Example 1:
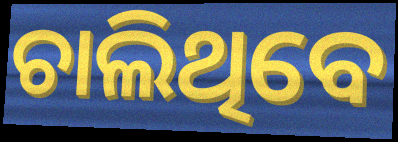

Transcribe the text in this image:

ଚାଲିଥିବେ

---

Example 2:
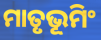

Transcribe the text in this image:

ମାତୃଭୂମିଂ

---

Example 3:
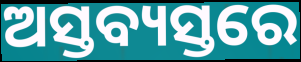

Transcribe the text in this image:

ଅସ୍ତବ୍ୟସ୍ତରେ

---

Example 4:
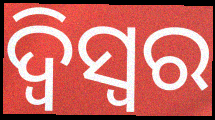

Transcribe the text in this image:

ଦ୍ଵିସ୍ଵର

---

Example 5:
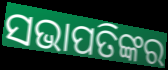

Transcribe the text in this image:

ସଭାପତିଙ୍କର